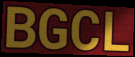
BGCL